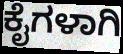
ಕೈಗಳಾಗಿ